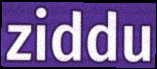
ziddu